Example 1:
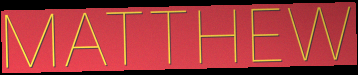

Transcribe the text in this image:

MATTHEW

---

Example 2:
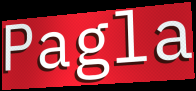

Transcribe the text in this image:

Pagla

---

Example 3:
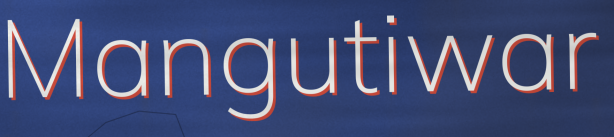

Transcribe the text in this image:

Mangutiwar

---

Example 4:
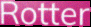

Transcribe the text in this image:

Rotter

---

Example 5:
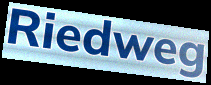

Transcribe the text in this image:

Riedweg